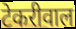
टेकरीवाल